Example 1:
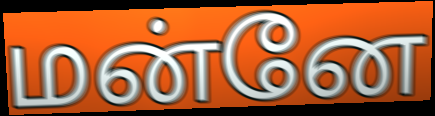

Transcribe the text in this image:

மன்னே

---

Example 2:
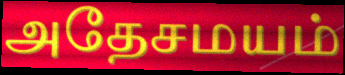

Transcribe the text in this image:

அதேசமயம்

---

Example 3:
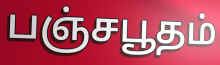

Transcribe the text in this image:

பஞ்சபூதம்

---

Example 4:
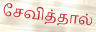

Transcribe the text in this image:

சேவித்தால்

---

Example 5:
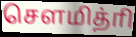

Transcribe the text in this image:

சௌமித்ரி